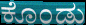
ಕೊಂಡು